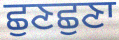
ਛੁਣਛੁਣਾ